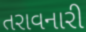
તરાવનારી